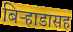
बिऱ्हाडासह